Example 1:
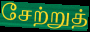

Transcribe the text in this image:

சேற்றுத்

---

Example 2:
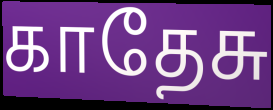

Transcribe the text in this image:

காதேசு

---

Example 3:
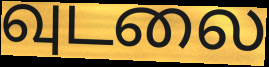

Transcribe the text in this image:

வுடலை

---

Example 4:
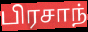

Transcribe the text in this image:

பிரசாந்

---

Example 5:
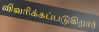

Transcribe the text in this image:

விவரிக்கப்படுகிறார்